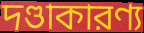
দণ্ডাকারণ্য